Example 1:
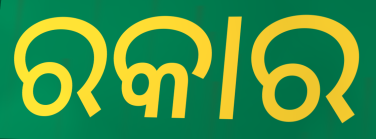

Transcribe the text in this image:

ରକାର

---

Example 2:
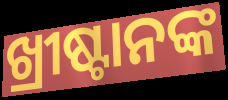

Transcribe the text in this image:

ଖ୍ରୀଷ୍ଟାନଙ୍କ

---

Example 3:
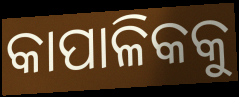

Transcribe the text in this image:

କାପାଳିକକୁ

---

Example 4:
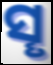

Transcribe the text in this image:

ସୄ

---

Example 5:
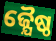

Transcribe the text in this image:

ଜ୍ଯୈଷ୍ଠ